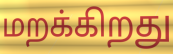
மறக்கிறது